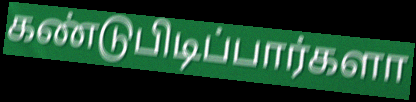
கண்டுபிடிப்பார்களா